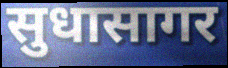
सुधासागर